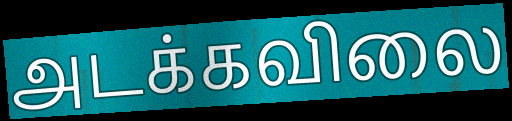
அடக்கவிலை